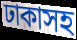
ঢাকাসহ